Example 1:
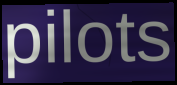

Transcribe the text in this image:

pilots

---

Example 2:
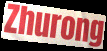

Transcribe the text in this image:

Zhurong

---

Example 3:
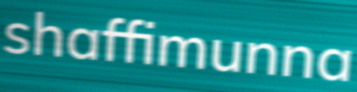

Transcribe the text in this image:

shaffimunna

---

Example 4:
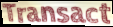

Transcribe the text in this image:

Transact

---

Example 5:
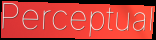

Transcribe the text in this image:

Perceptual